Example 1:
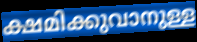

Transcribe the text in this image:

ക്ഷമിക്കുവാനുള്ള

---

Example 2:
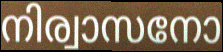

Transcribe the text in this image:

നിര്വാസനോ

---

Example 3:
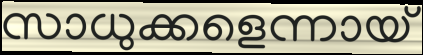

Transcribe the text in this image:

സാധുക്കളെന്നായ്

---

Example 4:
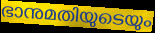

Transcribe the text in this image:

ഭാനുമതിയുടെയും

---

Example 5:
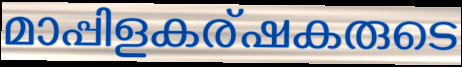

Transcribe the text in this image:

മാപ്പിളകര്ഷകരുടെ